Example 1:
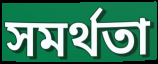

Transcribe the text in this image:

সমর্থতা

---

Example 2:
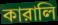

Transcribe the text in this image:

কারালি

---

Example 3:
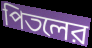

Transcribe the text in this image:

পিতলের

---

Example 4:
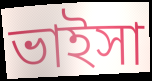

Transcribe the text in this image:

ভাইসা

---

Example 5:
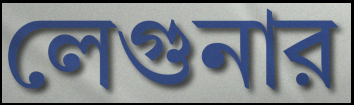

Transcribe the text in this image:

লেগুনার